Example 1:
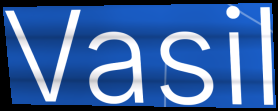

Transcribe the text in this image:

Vasil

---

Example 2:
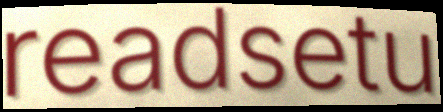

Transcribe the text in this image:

readsetu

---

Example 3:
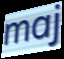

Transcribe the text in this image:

maj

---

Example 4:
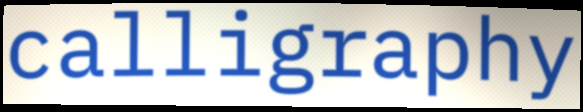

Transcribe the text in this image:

calligraphy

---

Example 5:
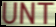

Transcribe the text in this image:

UNT